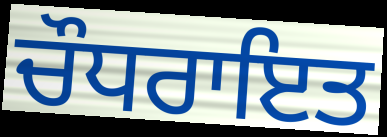
ਚੌਧਰਾਇਤ